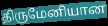
திருமேனியான